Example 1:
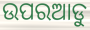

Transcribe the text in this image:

ଉପରଆଡୁ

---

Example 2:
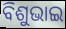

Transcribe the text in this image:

ବିଶୁଭାଇ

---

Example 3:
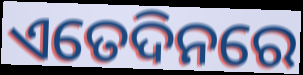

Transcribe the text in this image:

ଏତେଦିନରେ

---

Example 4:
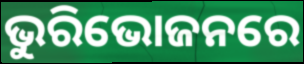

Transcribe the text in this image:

ଭୁରିଭୋଜନରେ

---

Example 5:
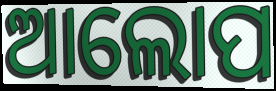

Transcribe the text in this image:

ଆଲୋପ